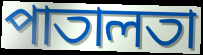
পাতালতা